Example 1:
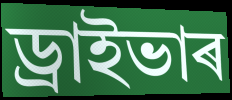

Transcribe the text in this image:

ড্ৰাইভাৰ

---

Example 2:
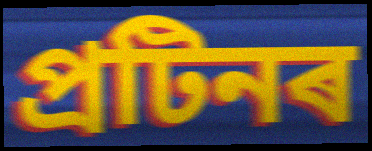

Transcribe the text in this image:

প্ৰটিনৰ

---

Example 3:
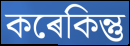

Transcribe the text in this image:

কৰেকিন্তু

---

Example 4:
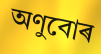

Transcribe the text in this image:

অণুবোৰ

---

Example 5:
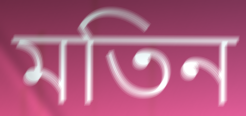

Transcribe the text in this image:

মতিন